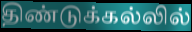
திண்டுக்கல்லில்